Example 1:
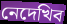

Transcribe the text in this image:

নেদেখিব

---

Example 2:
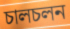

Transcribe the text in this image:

চালচলন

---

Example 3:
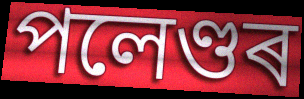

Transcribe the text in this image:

পলেণ্ডৰ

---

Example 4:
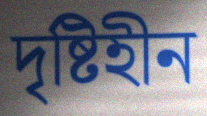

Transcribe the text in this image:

দৃষ্টিহীন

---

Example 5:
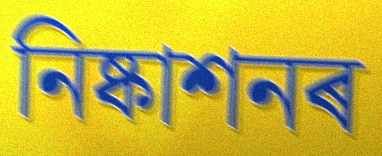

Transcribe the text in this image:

নিষ্কাশনৰ